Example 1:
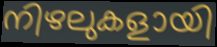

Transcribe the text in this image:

നിഴലുകളായി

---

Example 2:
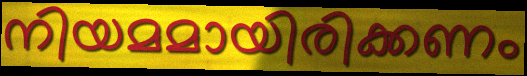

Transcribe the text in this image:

നിയമമായിരിക്കണം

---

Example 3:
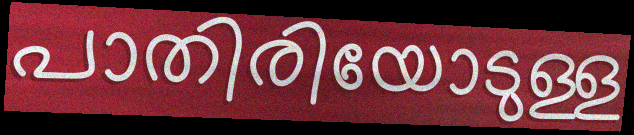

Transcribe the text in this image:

പാതിരിയോടുള്ള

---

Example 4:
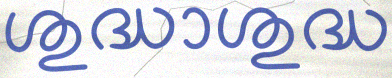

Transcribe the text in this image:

ശുദ്ധാശുദ്ധ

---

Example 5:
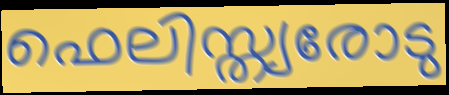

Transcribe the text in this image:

ഫെലിസ്ത്യരോടു